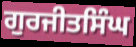
ਗੁਰਜੀਤਸਿੰਘ